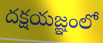
దక్షయజ్ఞంలో